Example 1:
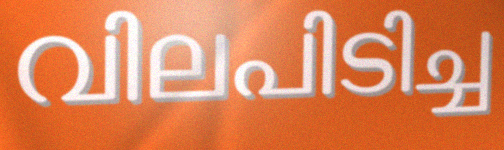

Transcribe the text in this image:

വിലപിടിച്ച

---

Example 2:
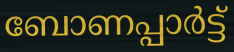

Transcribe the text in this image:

ബോണപ്പാർട്ട്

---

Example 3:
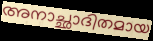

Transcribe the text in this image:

അനാച്ഛാദിതമായ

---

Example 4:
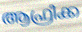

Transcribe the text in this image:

ആഫ്രിക്ക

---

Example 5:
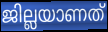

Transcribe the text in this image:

ജില്ലയാണത്